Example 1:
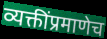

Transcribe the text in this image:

व्यक्तींप्रमाणेच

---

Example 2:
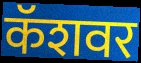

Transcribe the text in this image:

कॅशवर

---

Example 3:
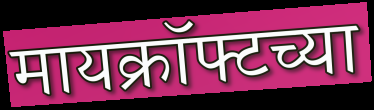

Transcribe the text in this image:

मायक्रॉफ्टच्या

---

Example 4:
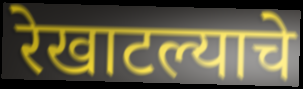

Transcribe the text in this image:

रेखाटल्याचे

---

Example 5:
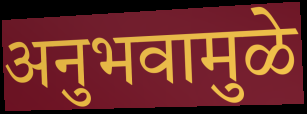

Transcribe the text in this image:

अनुभवामुळे